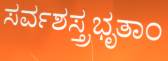
ಸರ್ವಶಸ್ತ್ರಭೃತಾಂ